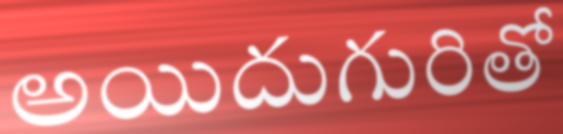
అయిదుగురితో